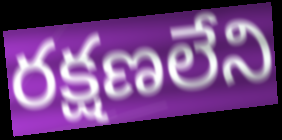
రక్షణలేని